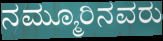
ನಮ್ಮೂರಿನವರು